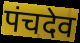
पंचदेव